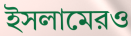
ইসলামেরও